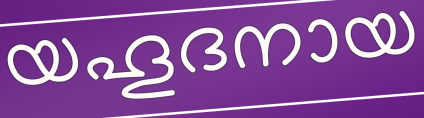
യഹൂദനായ